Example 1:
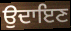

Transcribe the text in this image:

ਉਦਾਇਣ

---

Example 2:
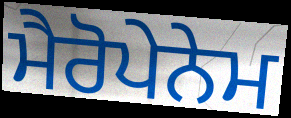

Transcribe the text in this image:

ਮੈਰੋਪੇਨੇਮ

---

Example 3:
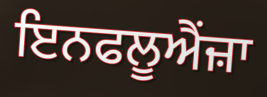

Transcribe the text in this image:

ਇਨਫਲੂਐਂਜ਼ਾ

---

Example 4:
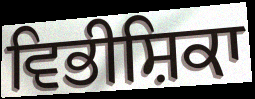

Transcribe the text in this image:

ਵਿਭੀਸ਼ਿਕਾ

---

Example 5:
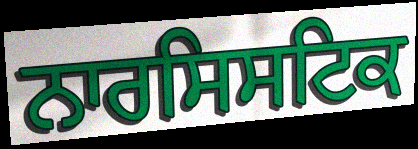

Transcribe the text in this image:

ਨਾਰਸਿਸਟਿਕ